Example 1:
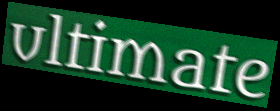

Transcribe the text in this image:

ultimate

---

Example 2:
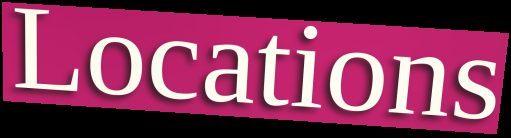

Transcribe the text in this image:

Locations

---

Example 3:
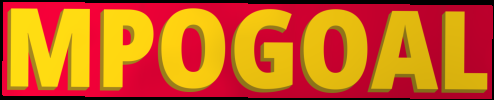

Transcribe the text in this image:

MPOGOAL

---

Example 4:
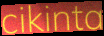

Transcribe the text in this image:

cikinta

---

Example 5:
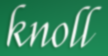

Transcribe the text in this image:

knoll